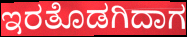
ಇರತೊಡಗಿದಾಗ